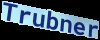
Trubner